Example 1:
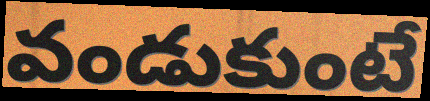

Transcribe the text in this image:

వండుకుంటే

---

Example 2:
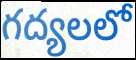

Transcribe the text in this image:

గద్యలలో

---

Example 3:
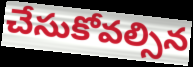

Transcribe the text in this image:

చేసుకోవల్సిన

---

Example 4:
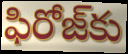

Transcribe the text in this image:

ఫిరోజ్‌కు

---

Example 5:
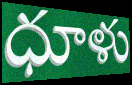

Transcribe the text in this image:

ధూళు